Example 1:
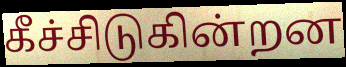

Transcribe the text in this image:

கீச்சிடுகின்றன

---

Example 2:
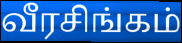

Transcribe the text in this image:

வீரசிங்கம்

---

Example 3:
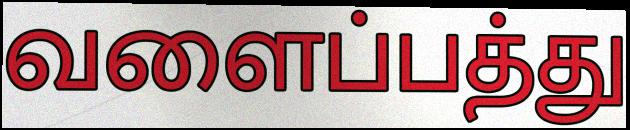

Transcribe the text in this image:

வளைப்பத்து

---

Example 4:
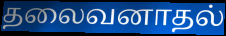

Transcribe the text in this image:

தலைவனாதல்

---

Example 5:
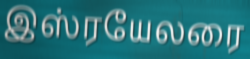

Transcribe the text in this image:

இஸ்ரயேலரை